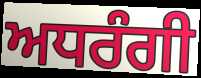
ਅਧਰੰਗੀ